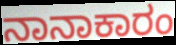
ನಾನಾಕಾರಂ